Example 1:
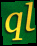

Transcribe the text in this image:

ql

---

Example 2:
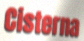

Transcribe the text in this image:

Cisterna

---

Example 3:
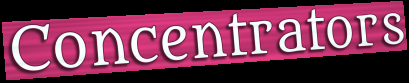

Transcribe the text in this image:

Concentrators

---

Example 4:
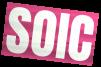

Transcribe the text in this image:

SOIC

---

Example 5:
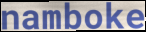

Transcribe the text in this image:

namboke